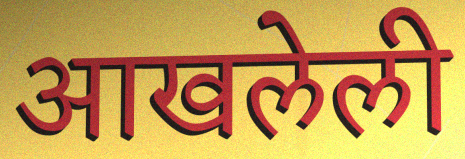
आखलेली